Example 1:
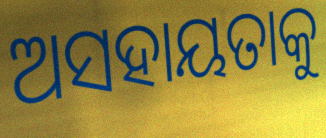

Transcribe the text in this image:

ଅସହାୟତାକୁ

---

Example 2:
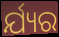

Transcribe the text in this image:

ର୍ଯ୍ୟର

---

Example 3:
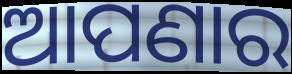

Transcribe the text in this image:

ଆପଣାର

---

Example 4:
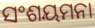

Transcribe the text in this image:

ସଂଶୟମନା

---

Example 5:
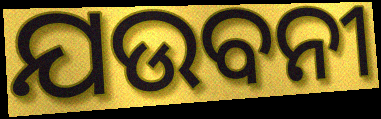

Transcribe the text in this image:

ଯଉବନୀ